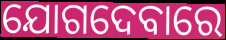
ଯୋଗଦେବାରେ